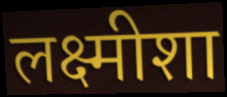
लक्ष्मीशा